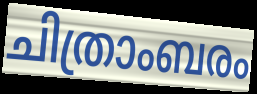
ചിത്രാംബരം